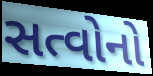
સત્વોનો